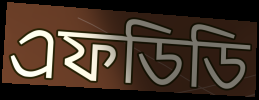
এফডিডি